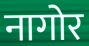
नागोर